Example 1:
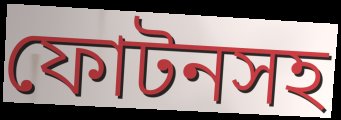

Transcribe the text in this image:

ফোটনসহ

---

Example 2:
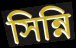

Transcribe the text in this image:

সিন্নি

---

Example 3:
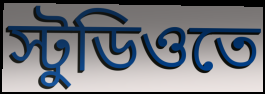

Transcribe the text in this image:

স্টুডিওতে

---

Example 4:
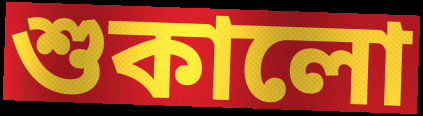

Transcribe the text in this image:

শুকালো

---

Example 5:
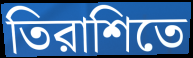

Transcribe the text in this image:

তিরাশিতে